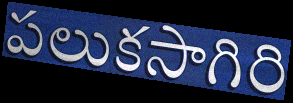
పలుకసాగిరి